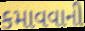
કમાવવાની